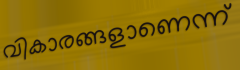
വികാരങ്ങളാണെന്ന്